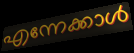
എന്നേക്കാൾ